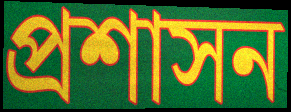
প্ৰশাসন